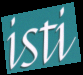
isti